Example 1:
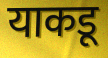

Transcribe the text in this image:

याकडू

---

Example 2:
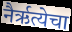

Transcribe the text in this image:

नैर्ऋत्येचा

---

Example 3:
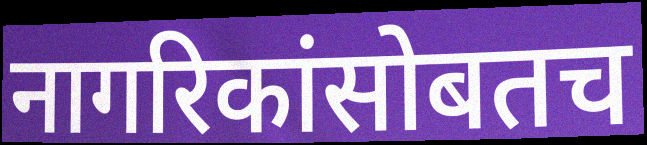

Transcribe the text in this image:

नागरिकांसोबतच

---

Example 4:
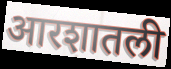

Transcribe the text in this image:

आरशातली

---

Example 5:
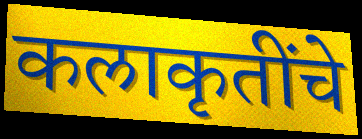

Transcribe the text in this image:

कलाकृतींचे